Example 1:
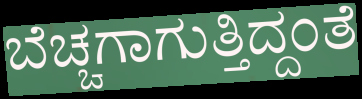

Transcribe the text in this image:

ಬೆಚ್ಚಗಾಗುತ್ತಿದ್ದಂತೆ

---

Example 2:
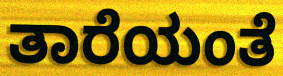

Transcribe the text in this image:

ತಾರೆಯಂತೆ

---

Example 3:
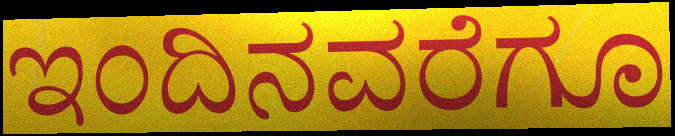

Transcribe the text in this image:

ಇಂದಿನವರೆಗೂ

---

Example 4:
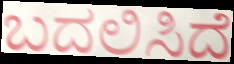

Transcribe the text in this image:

ಬದಲಿಸಿದೆ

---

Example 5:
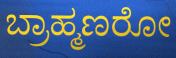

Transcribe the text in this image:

ಬ್ರಾಹ್ಮಣರೋ